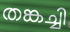
തങ്കച്ചി